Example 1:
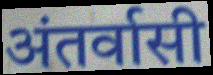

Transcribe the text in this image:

अंतर्वासी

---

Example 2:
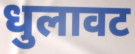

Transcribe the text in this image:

धुलावट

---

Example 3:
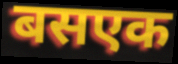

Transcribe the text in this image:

बसएक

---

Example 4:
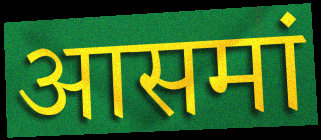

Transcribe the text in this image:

आसमां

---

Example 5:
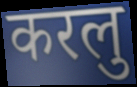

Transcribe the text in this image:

करलु